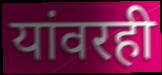
यांवरही